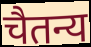
चैतन्य